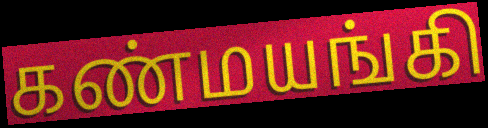
கண்மயங்கி